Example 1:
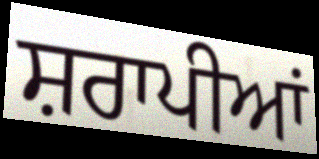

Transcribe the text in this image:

ਸ਼ਰਾਪੀਆਂ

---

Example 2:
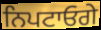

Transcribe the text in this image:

ਨਿਪਟਾਓਗੇ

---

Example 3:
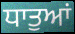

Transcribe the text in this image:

ਧਾਤੁਆਂ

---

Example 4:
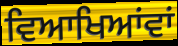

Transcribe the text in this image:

ਵਿਆਖਿਆਂਵਾਂ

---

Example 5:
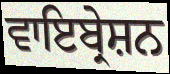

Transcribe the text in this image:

ਵਾਇਬ੍ਰੇਸ਼ਨ